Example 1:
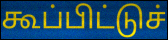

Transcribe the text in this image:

கூப்பிட்டுச்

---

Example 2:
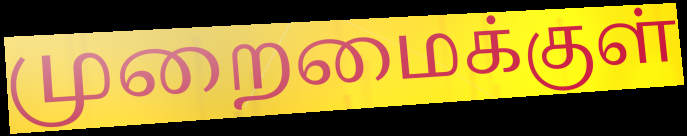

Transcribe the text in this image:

முறைமைக்குள்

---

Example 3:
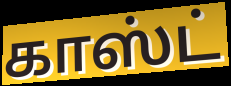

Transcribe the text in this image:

காஸ்ட்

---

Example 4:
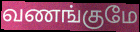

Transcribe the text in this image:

வணங்குமே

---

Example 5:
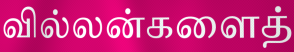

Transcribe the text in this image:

வில்லன்களைத்